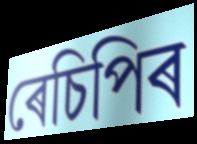
ৰেচিপিৰ